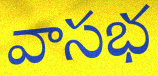
వాసభ